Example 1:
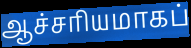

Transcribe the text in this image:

ஆச்சரியமாகப்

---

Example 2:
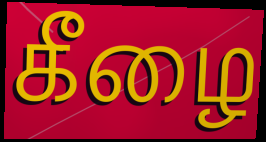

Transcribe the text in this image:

கீழை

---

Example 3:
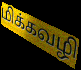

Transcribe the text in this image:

மிக்கவழி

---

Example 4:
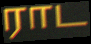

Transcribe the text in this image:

ராட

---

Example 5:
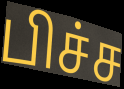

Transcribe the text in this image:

பிச்ச